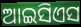
ଆଇସିଏସ